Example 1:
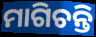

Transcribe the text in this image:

ମାଗିଚନ୍ତି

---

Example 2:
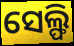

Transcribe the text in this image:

ସେଲ୍ଫି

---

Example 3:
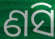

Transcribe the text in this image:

ଣସି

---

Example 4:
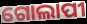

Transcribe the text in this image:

ଗୋଲାପୀ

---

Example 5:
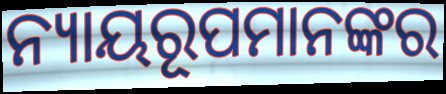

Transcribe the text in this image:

ନ୍ୟାୟରୂପମାନଙ୍କର